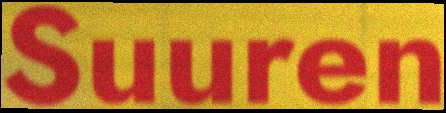
Suuren